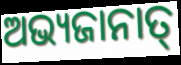
ଅଭ୍ୟଜାନାତ୍